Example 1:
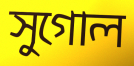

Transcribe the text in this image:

সুগোল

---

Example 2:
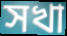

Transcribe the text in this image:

সখা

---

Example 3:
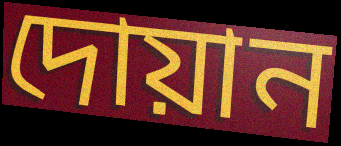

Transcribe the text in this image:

দোয়ান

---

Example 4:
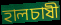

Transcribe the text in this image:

হালচাষী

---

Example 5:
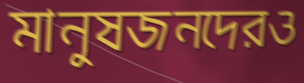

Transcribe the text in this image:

মানুষজনদেরও